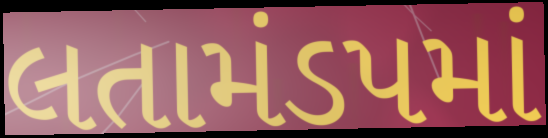
લતામંડપમાં